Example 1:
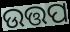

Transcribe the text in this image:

ଉତ୍ତପ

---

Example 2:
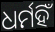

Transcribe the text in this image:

ଧର୍ମହିଁ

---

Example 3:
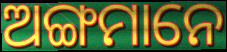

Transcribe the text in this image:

ଅଙ୍ଗମାନେ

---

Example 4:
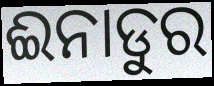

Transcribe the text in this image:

ଈନାଡୁର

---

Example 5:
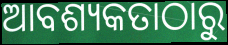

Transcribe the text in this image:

ଆବଶ୍ୟକତାଠାରୁ